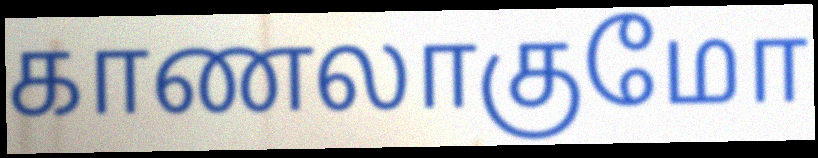
காணலாகுமோ